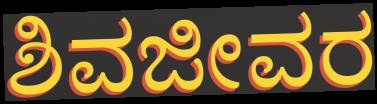
ಶಿವಜೀವರ